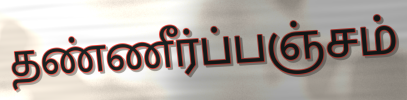
தண்ணீர்ப்பஞ்சம்